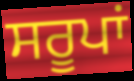
ਸਰੂਪਾਂ